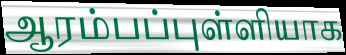
ஆரம்பப்புள்ளியாக